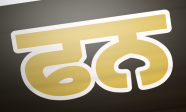
ਫਨ